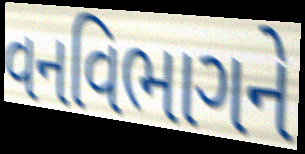
વનવિભાગને